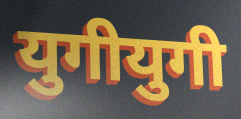
युगीयुगी